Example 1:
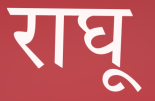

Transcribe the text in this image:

राघू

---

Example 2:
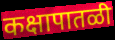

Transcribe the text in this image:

कक्षापातळी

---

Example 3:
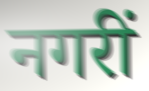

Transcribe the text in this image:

नगरीं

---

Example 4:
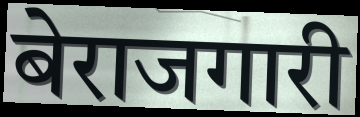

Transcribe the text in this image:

बेराजगारी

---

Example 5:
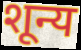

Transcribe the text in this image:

शून्य